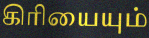
கிரியையும்